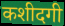
कशीदगी